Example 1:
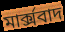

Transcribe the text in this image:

মার্ক্সবাদ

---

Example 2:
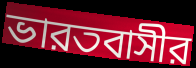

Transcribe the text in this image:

ভারতবাসীর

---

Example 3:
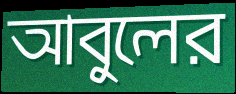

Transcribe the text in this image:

আবুলের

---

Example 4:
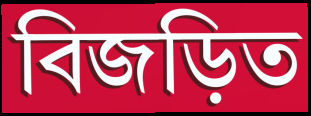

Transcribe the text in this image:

বিজড়িত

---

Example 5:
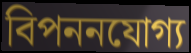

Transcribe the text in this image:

বিপননযোগ্য